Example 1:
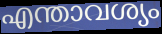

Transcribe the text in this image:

എന്താവശ്യം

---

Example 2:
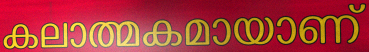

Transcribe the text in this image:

കലാത്മകമായാണ്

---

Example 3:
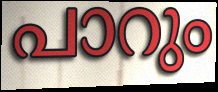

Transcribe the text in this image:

പാറും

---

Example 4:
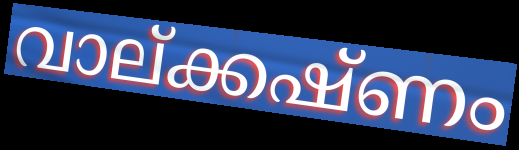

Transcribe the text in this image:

വാല്ക്കഷ്ണം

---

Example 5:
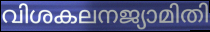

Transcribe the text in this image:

വിശകലനജ്യാമിതി